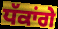
ਧੱਕਾਂਗੇ